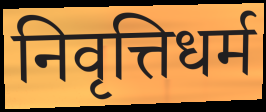
निवृत्तिधर्म